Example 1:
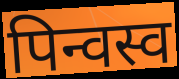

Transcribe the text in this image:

पिन्वस्व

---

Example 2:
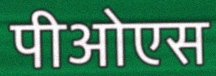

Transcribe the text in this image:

पीओएस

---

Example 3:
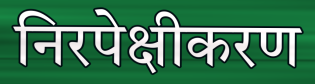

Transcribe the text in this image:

निरपेक्षीकरण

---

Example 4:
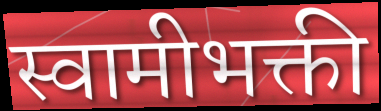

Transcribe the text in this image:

स्वामीभक्ती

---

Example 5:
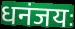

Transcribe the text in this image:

धनंजयः